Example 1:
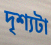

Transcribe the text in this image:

দৃশ্যটা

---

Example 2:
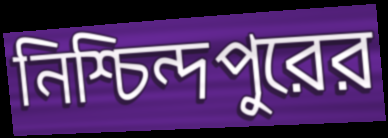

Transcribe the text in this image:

নিশ্চিন্দপুরের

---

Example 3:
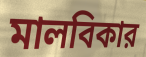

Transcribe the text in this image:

মালবিকার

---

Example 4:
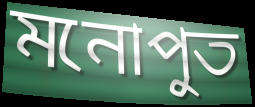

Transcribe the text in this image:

মনোপুত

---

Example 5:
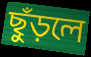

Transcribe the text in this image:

ছুঁড়লে